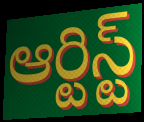
ఆర్టిస్ట్